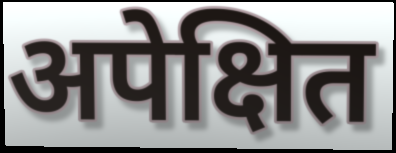
अपेक्षित